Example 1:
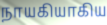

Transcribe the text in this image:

நாயகியாகிய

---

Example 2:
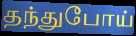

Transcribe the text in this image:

தந்துபோய்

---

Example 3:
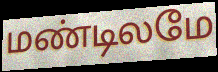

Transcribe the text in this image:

மண்டிலமே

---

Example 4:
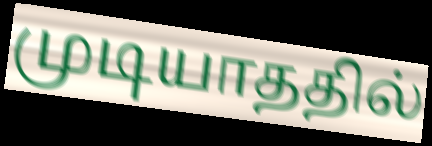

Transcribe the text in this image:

முடியாததில்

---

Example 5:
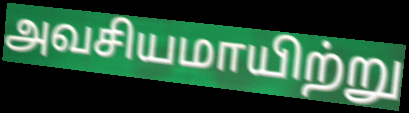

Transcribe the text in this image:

அவசியமாயிற்று